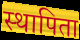
स्थापिता